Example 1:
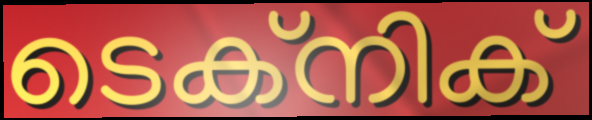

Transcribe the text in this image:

ടെക്നിക്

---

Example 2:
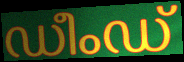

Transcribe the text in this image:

ഡീംഡ്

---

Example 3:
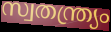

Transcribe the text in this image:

സ്വതന്ത്ര്യം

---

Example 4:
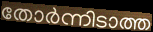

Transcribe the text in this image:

തോർന്നിടാത്ത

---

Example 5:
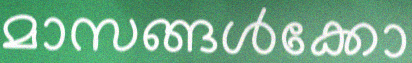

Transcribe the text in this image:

മാസങ്ങൾക്കോ